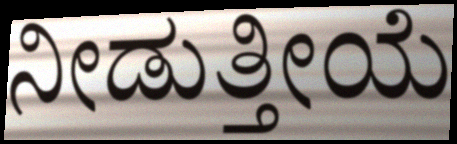
ನೀಡುತ್ತೀಯೆ